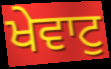
ਖੇਵਾਟੁ